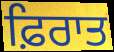
ਫ਼ਿਰਾਤ